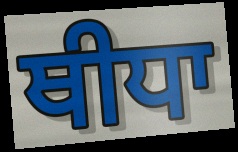
ਥੀਧਾ